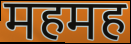
महमह